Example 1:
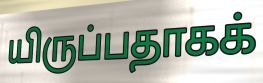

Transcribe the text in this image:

யிருப்பதாகக்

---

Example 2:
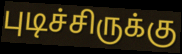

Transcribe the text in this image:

புடிச்சிருக்கு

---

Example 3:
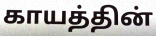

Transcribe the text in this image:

காயத்தின்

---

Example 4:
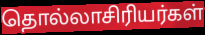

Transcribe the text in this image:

தொல்லாசிரியர்கள்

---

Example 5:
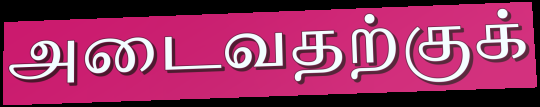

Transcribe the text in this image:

அடைவதற்குக்